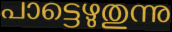
പാട്ടെഴുതുന്നു